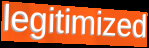
legitimized